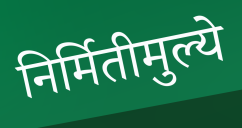
निर्मितीमुल्ये